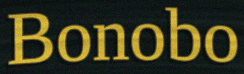
Bonobo